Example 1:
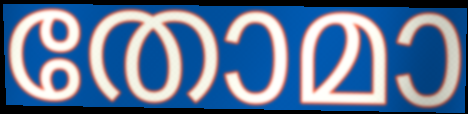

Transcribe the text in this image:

തോമാ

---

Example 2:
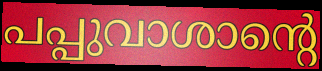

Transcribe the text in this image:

പപ്പുവാശാന്റെ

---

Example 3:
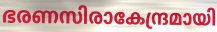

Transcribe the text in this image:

ഭരണസിരാകേന്ദ്രമായി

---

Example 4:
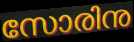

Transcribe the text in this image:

സോരിനു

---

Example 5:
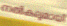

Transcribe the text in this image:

നൽകലുമായി